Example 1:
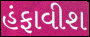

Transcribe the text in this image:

હંફાવીશ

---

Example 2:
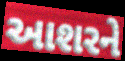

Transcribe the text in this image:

આશરને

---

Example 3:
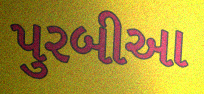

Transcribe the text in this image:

પુરબીઆ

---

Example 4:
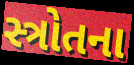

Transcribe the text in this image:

સ્ત્રોતના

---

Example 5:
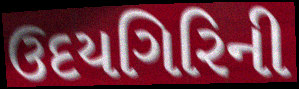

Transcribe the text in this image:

ઉદયગિરિની